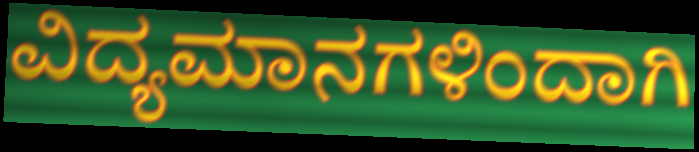
ವಿದ್ಯಮಾನಗಳಿಂದಾಗಿ